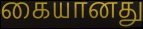
கையானது